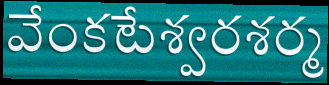
వేంకటేశ్వరశర్మ